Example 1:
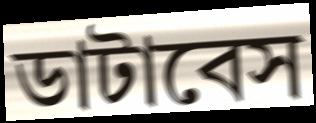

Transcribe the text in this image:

ডাটাবেস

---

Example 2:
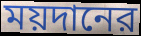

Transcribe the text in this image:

ময়দানের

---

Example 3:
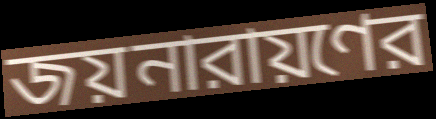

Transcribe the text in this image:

জয়নারায়ণের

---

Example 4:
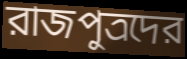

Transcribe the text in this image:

রাজপুত্রদের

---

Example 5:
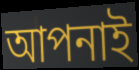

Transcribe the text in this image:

আপনাই